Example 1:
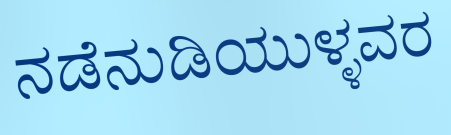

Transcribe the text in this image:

ನಡೆನುಡಿಯುಳ್ಳವರ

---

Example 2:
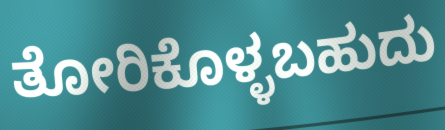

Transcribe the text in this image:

ತೋರಿಕೊಳ್ಳಬಹುದು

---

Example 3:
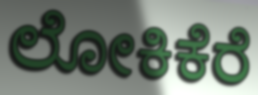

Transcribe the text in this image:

ಲೋಕಿಕೆರೆ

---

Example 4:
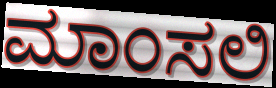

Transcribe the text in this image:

ಮಾಂಸಲಿ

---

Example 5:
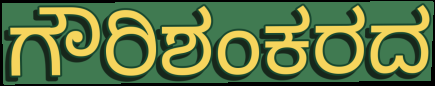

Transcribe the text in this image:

ಗೌರಿಶಂಕರದ